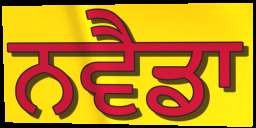
ਨਵੈਡਾ